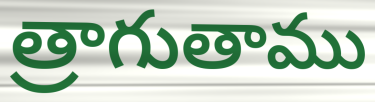
త్రాగుతాము